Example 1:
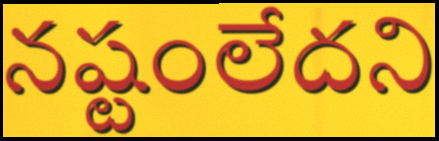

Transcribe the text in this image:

నష్టంలేదని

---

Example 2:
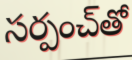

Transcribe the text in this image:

సర్పంచ్‌తో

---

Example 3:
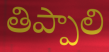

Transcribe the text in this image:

తిప్పాలి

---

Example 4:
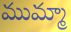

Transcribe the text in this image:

ముమ్మా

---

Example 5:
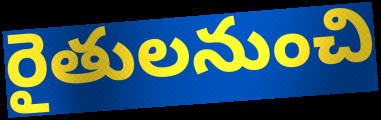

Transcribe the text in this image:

రైతులనుంచి